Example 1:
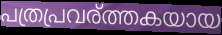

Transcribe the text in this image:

പത്രപ്രവര്ത്തകയായ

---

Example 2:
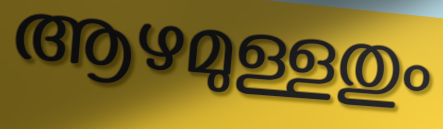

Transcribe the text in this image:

ആഴമുള്ളതും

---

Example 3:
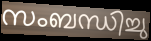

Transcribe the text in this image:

സംബന്ധിച്ചു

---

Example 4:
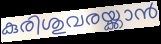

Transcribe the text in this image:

കുരിശുവരയ്ക്കാൻ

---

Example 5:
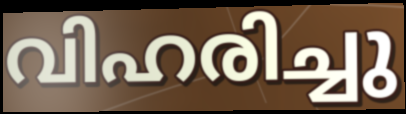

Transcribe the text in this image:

വിഹരിച്ചു